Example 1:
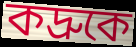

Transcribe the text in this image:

কদ্রুকে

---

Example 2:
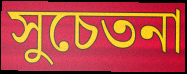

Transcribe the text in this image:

সুচেতনা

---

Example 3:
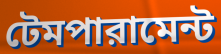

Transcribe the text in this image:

টেমপারামেন্ট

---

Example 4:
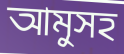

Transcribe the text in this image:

আমুসহ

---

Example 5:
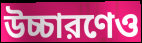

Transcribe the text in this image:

উচ্চারণেও